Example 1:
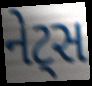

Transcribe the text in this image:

નેટ્સ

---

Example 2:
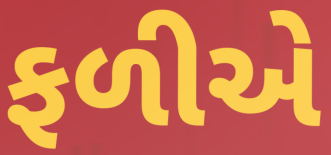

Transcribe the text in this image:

ફળીએ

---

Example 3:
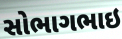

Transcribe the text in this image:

સોભાગભાઇ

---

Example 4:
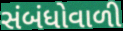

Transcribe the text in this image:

સંબંધોવાળી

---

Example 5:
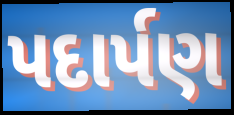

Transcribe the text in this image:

પદાર્પણ